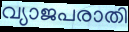
വ്യാജപരാതി